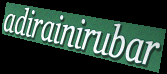
adirainirubar